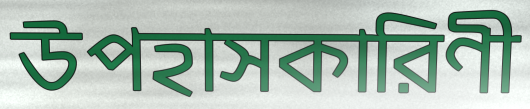
উপহাসকারিণী